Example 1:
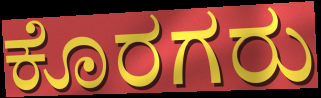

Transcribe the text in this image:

ಕೊರಗರು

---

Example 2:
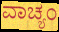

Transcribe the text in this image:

ವಾಚ್ಯಂ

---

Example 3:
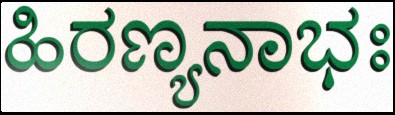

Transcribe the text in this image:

ಹಿರಣ್ಯನಾಭಃ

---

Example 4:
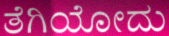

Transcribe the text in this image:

ತೆಗಿಯೋದು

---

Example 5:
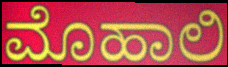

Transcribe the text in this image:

ಮೊಹಾಲಿ